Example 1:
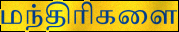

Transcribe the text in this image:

மந்திரிகளை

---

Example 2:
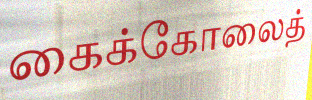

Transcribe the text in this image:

கைக்கோலைத்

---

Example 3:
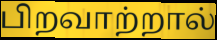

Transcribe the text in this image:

பிறவாற்றால்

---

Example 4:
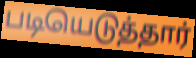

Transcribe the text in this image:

படியெடுத்தார்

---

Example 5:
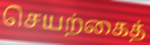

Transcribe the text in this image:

செயற்கைத்